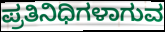
ಪ್ರತಿನಿಧಿಗಳಾಗುವ